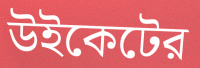
উইকেটের